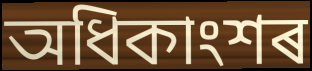
অধিকাংশৰ